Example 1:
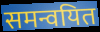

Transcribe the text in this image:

समन्वयित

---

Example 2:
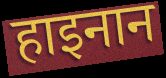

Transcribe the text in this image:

हाइनान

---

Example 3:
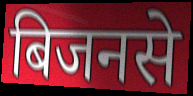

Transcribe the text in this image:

बिजनसे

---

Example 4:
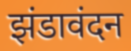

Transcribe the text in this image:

झंडावंदन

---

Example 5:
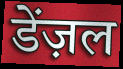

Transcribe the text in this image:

डेंज़ल